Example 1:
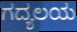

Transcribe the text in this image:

ಗದ್ಯಲಯ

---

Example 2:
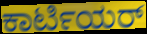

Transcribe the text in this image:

ಕಾರ್ಟಿಯರ್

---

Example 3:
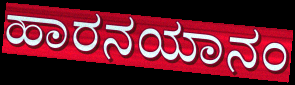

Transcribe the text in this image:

ಹಾರನಯಾನಂ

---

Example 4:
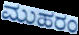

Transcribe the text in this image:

ಮುಹರಂ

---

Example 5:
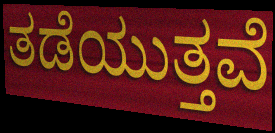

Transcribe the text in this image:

ತಡೆಯುತ್ತವೆ